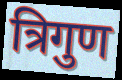
त्रिगुण